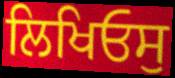
ਲਿਖਿਓਸੁ